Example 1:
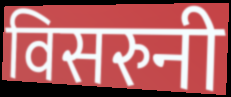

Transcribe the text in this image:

विसरुनी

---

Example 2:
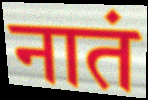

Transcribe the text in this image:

नातं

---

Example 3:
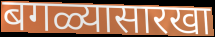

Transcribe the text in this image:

बगळ्यासारखा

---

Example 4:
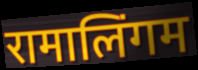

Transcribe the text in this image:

रामालिंगम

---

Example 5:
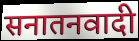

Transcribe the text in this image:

सनातनवादी